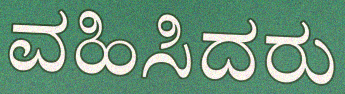
ವಹಿಸಿದರು